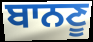
ਬਾਨਣੂ